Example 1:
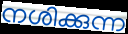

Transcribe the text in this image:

നശിക്കുന്ന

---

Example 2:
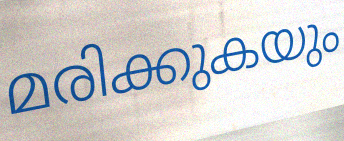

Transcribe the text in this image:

മരിക്കുകയും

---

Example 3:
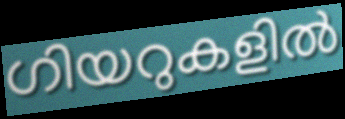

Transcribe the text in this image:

ഗിയറുകളിൽ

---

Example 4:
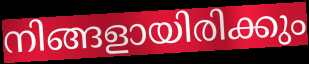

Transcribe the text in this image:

നിങ്ങളായിരിക്കും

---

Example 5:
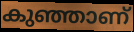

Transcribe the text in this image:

കുഞ്ഞാണ്